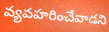
వ్యవహరించేవాడని